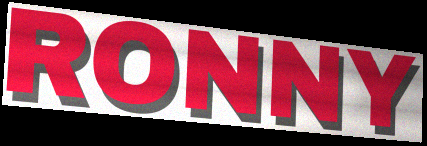
RONNY